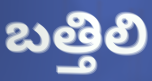
బత్తిలి